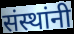
संस्थांनी